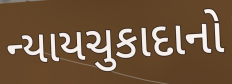
ન્યાયચુકાદાનો